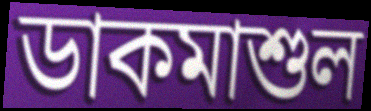
ডাকমাশুল